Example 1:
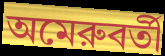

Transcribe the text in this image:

অমেরুবর্তী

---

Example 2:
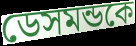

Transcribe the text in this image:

ডেসমন্ডকে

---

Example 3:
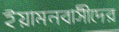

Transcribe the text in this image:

ইয়ামনবাসীদের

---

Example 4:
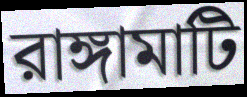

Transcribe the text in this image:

রাঙ্গামাটি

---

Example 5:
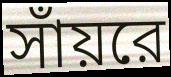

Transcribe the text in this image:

সাঁয়রে